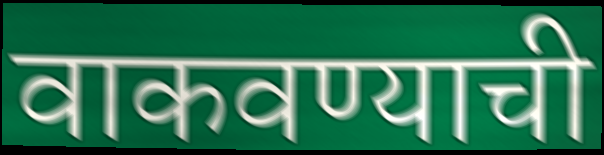
वाकवण्याची